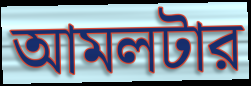
আমলটার